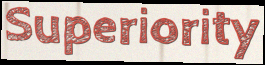
Superiority